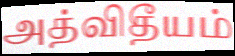
அத்விதீயம்